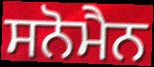
ਸਨੋਮੈਨ